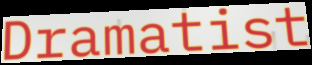
Dramatist